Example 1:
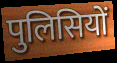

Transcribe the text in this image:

पुलिसियों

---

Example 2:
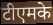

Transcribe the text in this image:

टीएमके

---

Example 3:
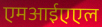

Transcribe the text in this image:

एमआईएएल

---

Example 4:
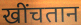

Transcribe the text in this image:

खींचतान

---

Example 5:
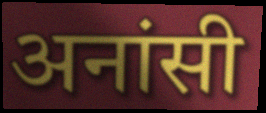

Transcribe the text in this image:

अनांसी